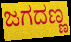
ಜಗದಣ್ಣ